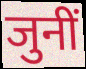
जुनीं